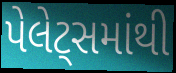
પેલેટ્સમાંથી